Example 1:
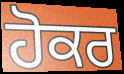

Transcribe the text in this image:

ਹੋਕਰ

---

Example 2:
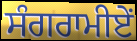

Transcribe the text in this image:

ਸੰਗਰਾਮੀਏਂ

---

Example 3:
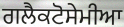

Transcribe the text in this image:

ਗਲੈਕਟੋਸੇਮੀਆ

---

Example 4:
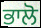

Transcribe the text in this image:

ਭਾਲੋ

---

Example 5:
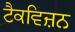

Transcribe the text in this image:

ਟੈਕਵਿਜ਼ਨ